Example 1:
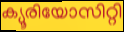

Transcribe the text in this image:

ക്യൂരിയോസിറ്റി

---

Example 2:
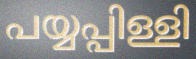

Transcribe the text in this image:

പയ്യപ്പിള്ളി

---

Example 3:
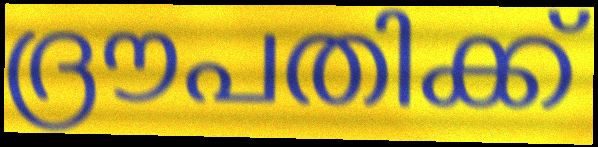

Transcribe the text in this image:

ദ്രൗപതിക്ക്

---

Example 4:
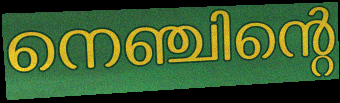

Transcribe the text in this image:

നെഞ്ചിന്റെ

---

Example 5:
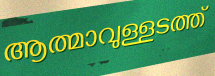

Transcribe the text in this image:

ആത്മാവുള്ളടത്ത്